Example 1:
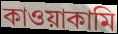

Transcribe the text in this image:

কাওয়াকামি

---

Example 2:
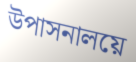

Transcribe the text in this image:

উপাসনালয়ে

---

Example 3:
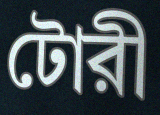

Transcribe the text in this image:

টোরী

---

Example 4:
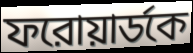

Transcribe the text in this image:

ফরোয়ার্ডকে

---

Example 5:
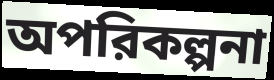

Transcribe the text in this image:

অপরিকল্পনা